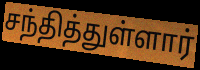
சந்தித்துள்ளார்